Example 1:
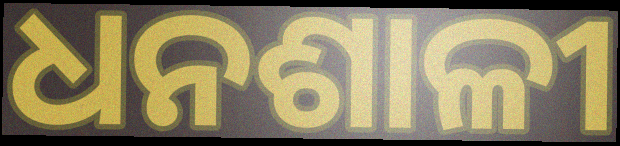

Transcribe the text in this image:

ଧନଶାଳୀ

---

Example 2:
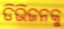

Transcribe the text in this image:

ଡିଭିଜନକୁ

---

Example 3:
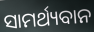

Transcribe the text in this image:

ସାମର୍ଥ୍ୟବାନ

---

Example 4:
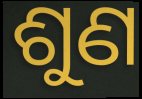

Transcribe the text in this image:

ଶୁଣ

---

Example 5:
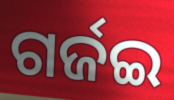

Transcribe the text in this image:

ଗର୍ଜଇ